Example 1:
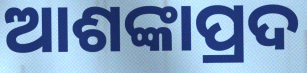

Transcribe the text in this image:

ଆଶଙ୍କାପ୍ରଦ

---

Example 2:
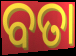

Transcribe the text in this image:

ବତା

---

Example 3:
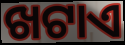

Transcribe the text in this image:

ଖଟାଏ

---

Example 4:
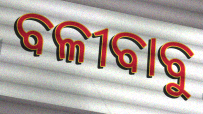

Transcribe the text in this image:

ବଳୀବାବୁ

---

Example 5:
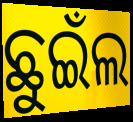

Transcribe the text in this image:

ଛୁଇଁଲ